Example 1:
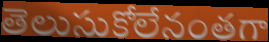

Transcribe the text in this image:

తెలుసుకోలేనంతగా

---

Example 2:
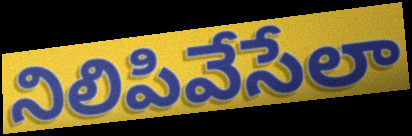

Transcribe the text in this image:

నిలిపివేసేలా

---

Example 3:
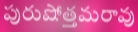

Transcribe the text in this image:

పురుషోత్తమరావు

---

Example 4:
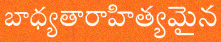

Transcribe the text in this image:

బాధ్యతారాహిత్యమైన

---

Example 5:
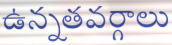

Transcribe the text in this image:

ఉన్నతవర్గాలు